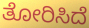
ತೋರಿಸಿದೆ